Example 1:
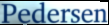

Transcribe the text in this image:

Pedersen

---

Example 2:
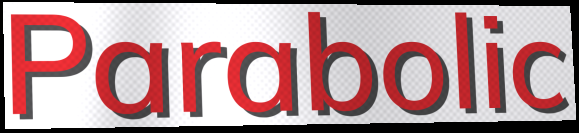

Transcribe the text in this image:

Parabolic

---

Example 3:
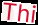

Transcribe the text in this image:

Thi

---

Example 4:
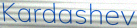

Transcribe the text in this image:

Kardashev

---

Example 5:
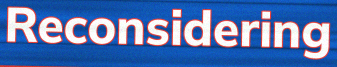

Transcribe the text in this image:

Reconsidering